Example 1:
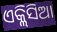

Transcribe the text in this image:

ଏକ୍ଲିସିଆ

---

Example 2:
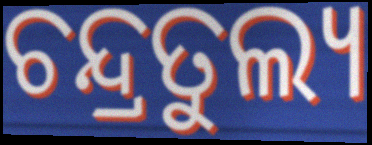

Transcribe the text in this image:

ଚନ୍ଦ୍ରତୁଲ୍ୟ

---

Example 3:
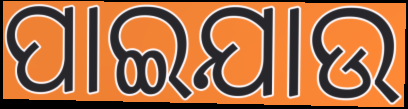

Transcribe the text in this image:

ପାଇଯାଉ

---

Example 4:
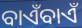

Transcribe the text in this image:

ବାଏଁବାଏଁ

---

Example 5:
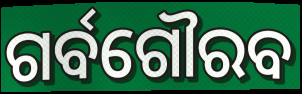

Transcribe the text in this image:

ଗର୍ବଗୌରବ